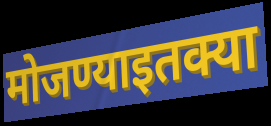
मोजण्याइतक्या